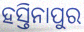
ହସ୍ତିନାପୁର